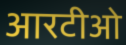
आरटीओ